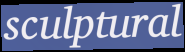
sculptural